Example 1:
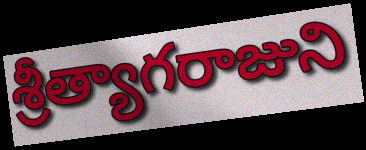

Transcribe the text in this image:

శ్రీత్యాగరాజుని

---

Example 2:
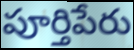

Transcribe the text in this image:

పూర్తిపేరు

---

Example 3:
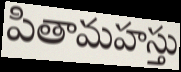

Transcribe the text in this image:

పితామహస్తు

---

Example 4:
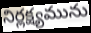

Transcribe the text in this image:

నిర్లక్ష్యమును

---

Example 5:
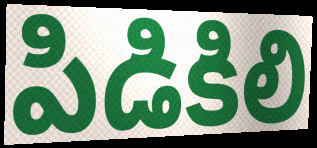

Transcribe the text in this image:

పిడికిలి